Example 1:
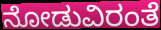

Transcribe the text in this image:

ನೋಡುವಿರಂತೆ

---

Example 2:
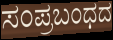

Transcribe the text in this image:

ಸಂಪ್ರಬಂಧದ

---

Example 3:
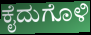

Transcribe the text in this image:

ಕೈದುಗೊಳಿ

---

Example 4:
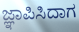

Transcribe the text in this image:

ಜ್ಞಾಪಿಸಿದಾಗ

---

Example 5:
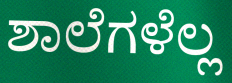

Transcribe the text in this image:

ಶಾಲೆಗಳೆಲ್ಲ